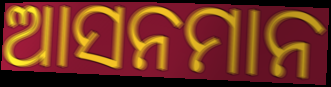
ଆସନମାନ